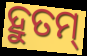
ହୁତମ୍